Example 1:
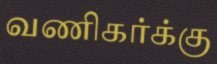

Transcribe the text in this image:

வணிகர்க்கு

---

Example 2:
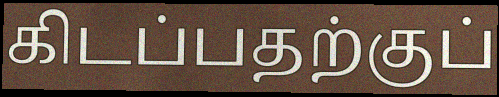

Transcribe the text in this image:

கிடப்பதற்குப்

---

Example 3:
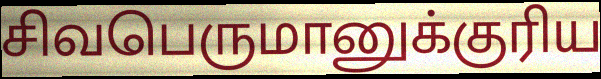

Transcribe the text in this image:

சிவபெருமானுக்குரிய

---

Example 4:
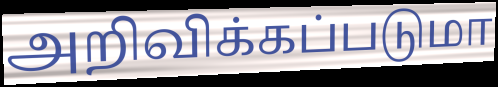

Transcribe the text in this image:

அறிவிக்கப்படுமா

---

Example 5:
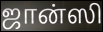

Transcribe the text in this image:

ஜான்ஸி